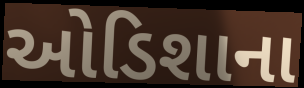
ઓડિશાના